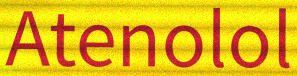
Atenolol